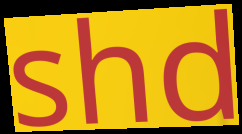
shd